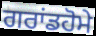
ਗਰਾਂਡਹੋਮੇ